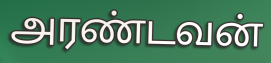
அரண்டவன்